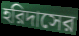
হরিদাসের